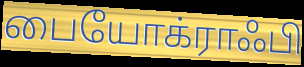
பையோக்ராஃபி